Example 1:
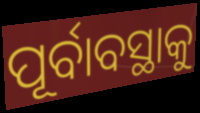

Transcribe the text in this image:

ପୂର୍ବାବସ୍ଥାକୁ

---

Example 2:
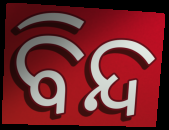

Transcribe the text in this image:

ବିନ୍ଦ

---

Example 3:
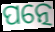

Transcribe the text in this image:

ପତ୍ନେ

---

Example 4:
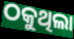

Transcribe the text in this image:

ଠକୁଥିଲା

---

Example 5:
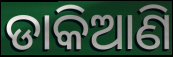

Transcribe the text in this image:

ଡାକିଆଣି